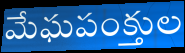
మేఘపంక్తుల